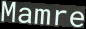
Mamre